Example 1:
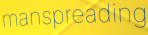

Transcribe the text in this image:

manspreading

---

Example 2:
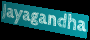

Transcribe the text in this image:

Jayagandha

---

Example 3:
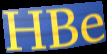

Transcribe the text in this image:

HBe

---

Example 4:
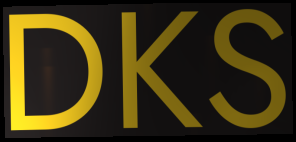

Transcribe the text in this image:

DKS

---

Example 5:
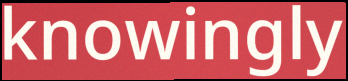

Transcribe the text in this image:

knowingly